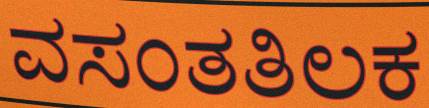
ವಸಂತತಿಲಕ